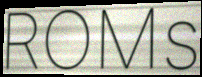
ROMs